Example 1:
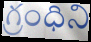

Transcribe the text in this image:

గ్రంధిని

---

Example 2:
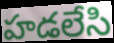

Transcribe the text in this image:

హడలేసి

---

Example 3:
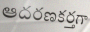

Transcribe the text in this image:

ఆదరణకర్తగా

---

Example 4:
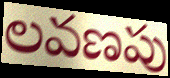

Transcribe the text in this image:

లవణపు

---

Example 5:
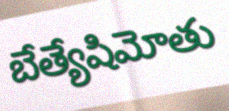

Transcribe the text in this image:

బేత్యేషిమోతు